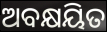
ଅବକ୍ଷୟିତ